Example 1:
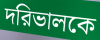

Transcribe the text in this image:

দরিভালকে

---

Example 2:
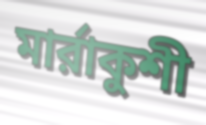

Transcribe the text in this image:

মার্রাকুশী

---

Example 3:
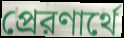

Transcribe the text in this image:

প্রেরণার্থে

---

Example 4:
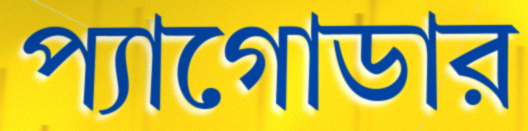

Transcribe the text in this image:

প্যাগোডার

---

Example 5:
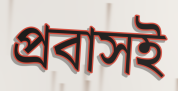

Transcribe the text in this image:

প্রবাসই